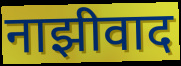
नाझीवाद